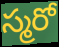
స్మరో